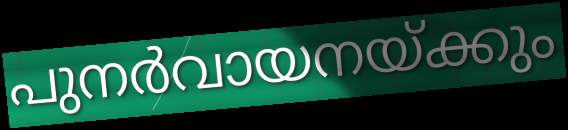
പുനർവായനയ്ക്കും